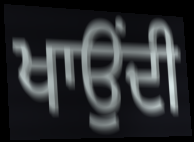
ਖਾਉਂਦੀ